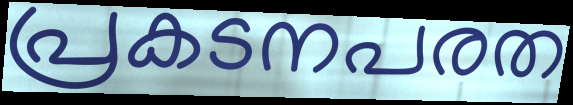
പ്രകടനപരത